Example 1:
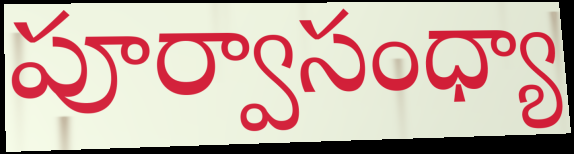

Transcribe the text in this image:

పూర్వాసంధ్యా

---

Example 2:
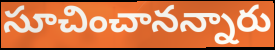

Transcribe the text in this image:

సూచించానన్నారు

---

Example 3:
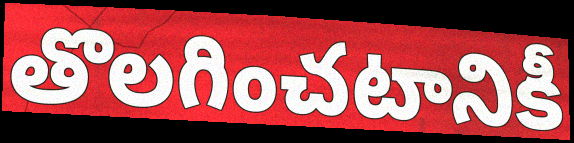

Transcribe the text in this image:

తొలగించటానికీ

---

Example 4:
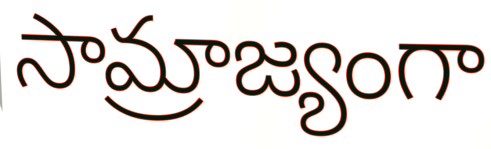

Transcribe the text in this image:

సామ్రాజ్యంగా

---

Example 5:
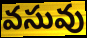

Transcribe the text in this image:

వసువు